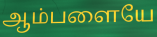
ஆம்பளையே